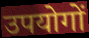
उपयोगों